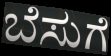
ಬೆಸುಗೆ